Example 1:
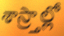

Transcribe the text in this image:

శాస్ర్తాల్లో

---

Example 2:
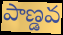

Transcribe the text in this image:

పాణ్డవ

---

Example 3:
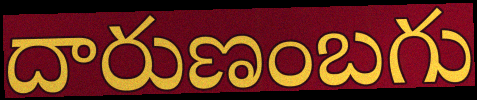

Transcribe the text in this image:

దారుణంబగు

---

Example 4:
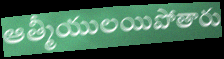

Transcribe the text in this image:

ఆత్మీయులయిపోతారు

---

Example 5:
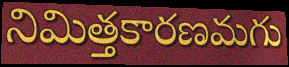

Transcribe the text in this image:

నిమిత్తకారణమగు